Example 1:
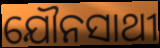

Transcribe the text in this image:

ଯୌନସାଥୀ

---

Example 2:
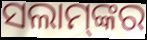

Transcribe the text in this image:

ସଲାମ୍‌ଙ୍କର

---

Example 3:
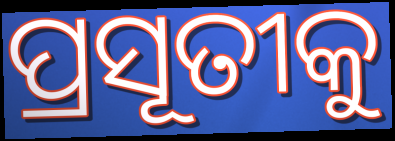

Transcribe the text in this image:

ପ୍ରସୂତୀକୁ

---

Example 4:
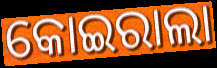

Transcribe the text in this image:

କୋଇରାଲା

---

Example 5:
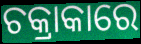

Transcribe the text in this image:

ଚକ୍ରାକାରେ